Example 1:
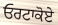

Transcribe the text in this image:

ਓਰਟਾਕੋਏ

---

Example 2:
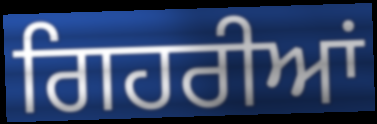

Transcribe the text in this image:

ਗਿਹਰੀਆਂ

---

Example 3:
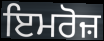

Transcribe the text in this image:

ਇਮਰੋਜ਼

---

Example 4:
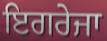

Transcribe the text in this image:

ਇਗਰੇਜਾ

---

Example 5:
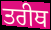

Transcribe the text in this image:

ਤਰੀਥ